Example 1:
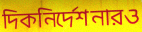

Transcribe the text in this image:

দিকনির্দেশনারও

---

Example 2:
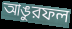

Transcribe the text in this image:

আঙুরফল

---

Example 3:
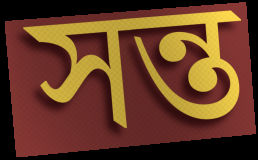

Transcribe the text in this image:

সন্ত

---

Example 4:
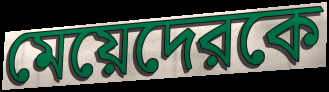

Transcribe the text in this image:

মেয়েদেরকে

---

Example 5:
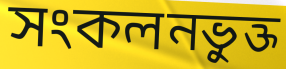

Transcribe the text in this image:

সংকলনভুক্ত